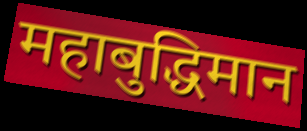
महाबुद्धिमान